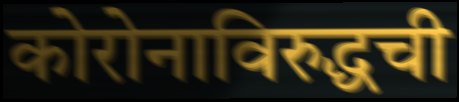
कोरोनाविरुद्धची